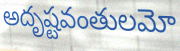
అదృష్టవంతులమో